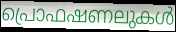
പ്രൊഫഷണലുകൾ